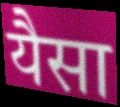
यैसा